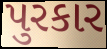
પુરકાર